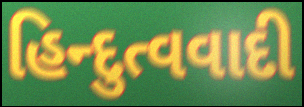
હિન્દુત્વવાદી